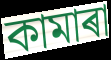
কামাৰা